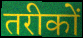
तरीकों